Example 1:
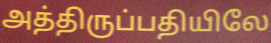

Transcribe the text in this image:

அத்திருப்பதியிலே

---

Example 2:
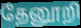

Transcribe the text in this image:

தேனூறி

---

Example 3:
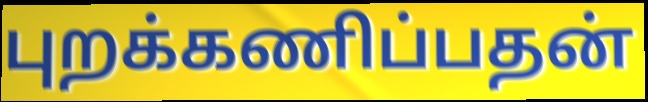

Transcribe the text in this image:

புறக்கணிப்பதன்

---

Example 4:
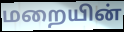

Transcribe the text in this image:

மறையின்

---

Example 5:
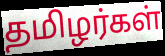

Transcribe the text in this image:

தமிழர்கள்